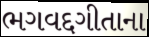
ભગવદ્દગીતાના